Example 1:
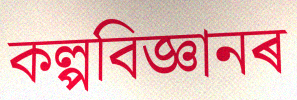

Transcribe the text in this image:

কল্পবিজ্ঞানৰ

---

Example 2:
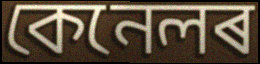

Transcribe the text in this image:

কেনেলৰ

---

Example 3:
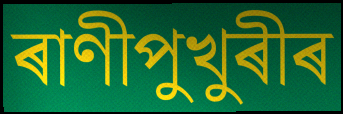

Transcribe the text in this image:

ৰাণীপুখুৰীৰ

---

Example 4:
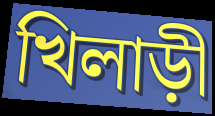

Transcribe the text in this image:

খিলাড়ী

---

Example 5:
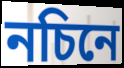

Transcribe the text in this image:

নচিনে